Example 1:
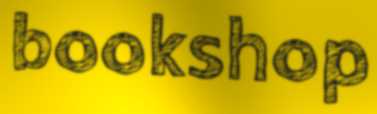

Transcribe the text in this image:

bookshop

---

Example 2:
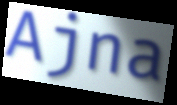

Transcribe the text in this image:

Ajna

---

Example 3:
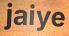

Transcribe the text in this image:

jaiye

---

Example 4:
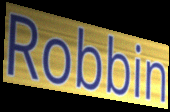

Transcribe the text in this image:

Robbin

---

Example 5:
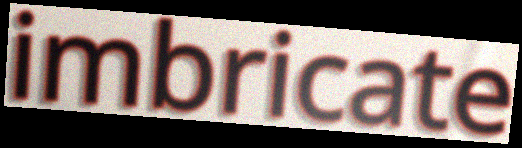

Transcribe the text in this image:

imbricate